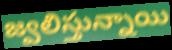
జ్వలిస్తున్నాయి